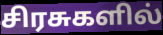
சிரசுகளில்